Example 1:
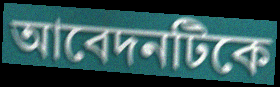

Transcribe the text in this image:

আবেদনটিকে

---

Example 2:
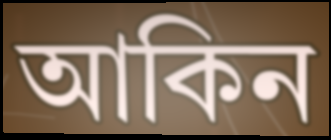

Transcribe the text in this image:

আকিন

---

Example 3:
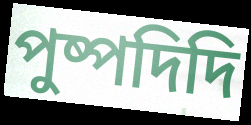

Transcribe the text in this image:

পুষ্পদিদি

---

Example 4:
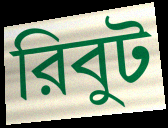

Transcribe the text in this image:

রিবুট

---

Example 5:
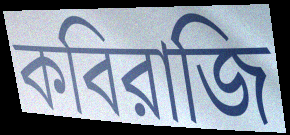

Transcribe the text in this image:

কবিরাজি